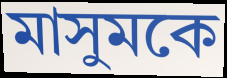
মাসুমকে